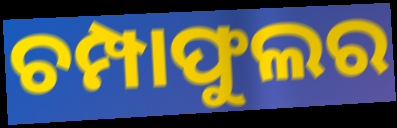
ଚମ୍ପାଫୁଲର